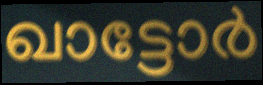
ഖാട്ടോർ